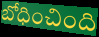
బోధించింది